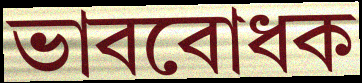
ভাববোধক